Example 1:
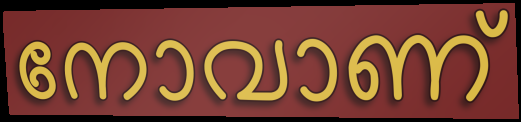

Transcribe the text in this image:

നോവാണ്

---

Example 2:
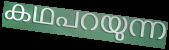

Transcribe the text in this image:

കഥപറയുന്ന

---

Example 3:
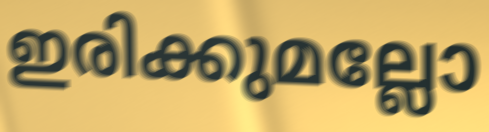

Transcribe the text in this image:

ഇരിക്കുമല്ലോ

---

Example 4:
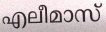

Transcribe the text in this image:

എലീമാസ്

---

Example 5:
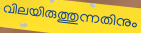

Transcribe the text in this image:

വിലയിരുത്തുന്നതിനും